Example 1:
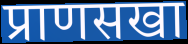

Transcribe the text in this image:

प्राणसखा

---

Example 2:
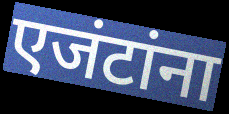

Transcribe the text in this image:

एजंटांना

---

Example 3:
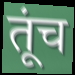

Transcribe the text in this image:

तूंच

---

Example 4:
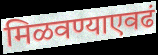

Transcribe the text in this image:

मिळवण्याएवढं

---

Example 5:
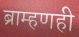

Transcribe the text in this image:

ब्राम्हणही